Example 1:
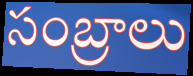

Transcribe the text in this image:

సంబ్రాలు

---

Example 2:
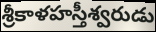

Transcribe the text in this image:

శ్రీకాళహస్తీశ్వరుడు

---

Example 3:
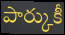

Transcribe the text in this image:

పార్కుకీ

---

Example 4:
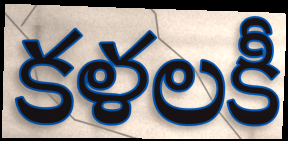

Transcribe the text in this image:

కళలకీ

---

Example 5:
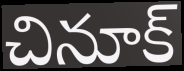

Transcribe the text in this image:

చినూక్